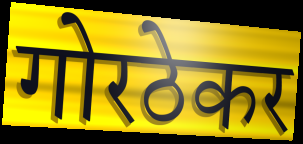
गोरठेकर